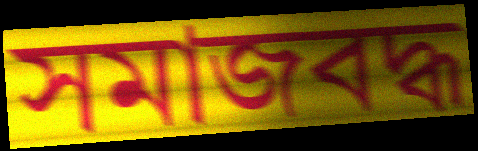
সমাজবদ্ধ